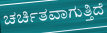
ಚರ್ಚಿತವಾಗುತ್ತಿದೆ